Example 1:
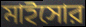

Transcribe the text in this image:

মাইসোর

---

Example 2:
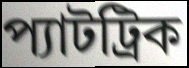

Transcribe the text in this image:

প্যাটট্রিক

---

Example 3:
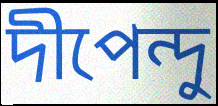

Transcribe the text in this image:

দীপেন্দু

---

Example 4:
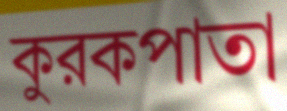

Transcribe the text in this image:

কুরকপাতা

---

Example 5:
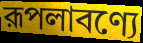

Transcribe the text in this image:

রূপলাবণ্যে